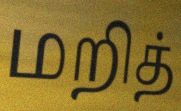
மறித்